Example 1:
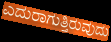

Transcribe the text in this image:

ಎದುರಾಗುತ್ತಿರುವುದು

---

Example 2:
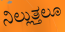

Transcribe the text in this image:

ನಿಲ್ಲುತ್ತಲೂ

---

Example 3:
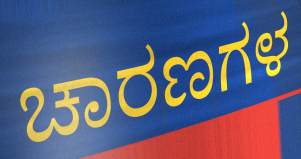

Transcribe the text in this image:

ಚಾರಣಗಳ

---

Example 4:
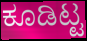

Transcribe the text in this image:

ಕೂಡಿಟ್ಟ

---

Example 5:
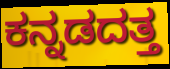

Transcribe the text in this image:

ಕನ್ನಡದತ್ತ